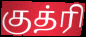
குத்ரி